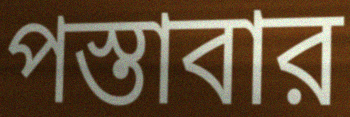
পস্তাবার